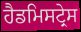
ਹੈਡਮਿਸਟ੍ਰੇਸ